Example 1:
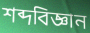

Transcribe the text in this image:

শব্দবিজ্ঞান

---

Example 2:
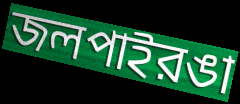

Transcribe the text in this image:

জলপাইরঙা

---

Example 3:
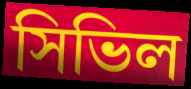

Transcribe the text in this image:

সিভিল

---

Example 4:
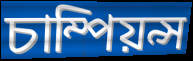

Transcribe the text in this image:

চাম্পিয়ন্স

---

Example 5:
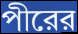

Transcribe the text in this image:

পীরের